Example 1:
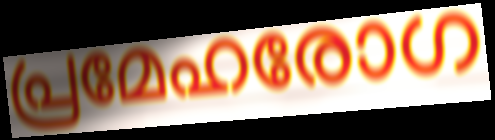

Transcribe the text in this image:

പ്രമേഹരോഗ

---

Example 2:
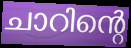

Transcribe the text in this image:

ചാറിന്റെ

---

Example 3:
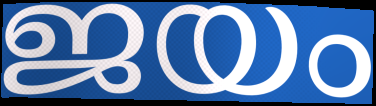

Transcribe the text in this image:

ജയം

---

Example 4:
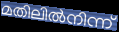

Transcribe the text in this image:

മതിലിൽനിന്ന്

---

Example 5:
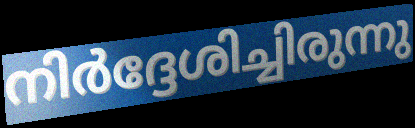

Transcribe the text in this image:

നിർദ്ദേശിച്ചിരുന്നു